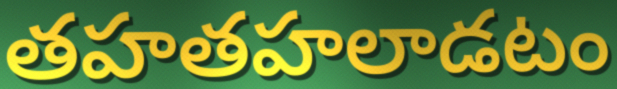
తహతహలాడటం